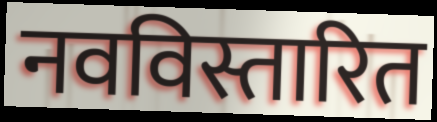
नवविस्तारित